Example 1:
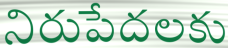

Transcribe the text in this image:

నిరుపేదలకు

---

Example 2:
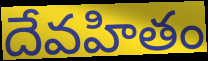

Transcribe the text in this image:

దేవహితం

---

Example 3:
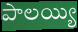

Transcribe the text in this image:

పాలయ్యి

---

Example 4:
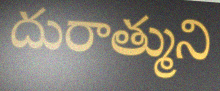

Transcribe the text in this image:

దురాత్ముని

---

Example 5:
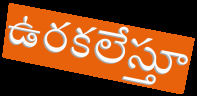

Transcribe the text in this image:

ఉరకలేస్తూ